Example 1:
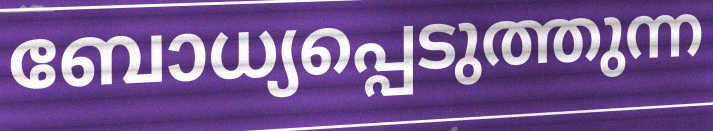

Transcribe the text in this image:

ബോധ്യപ്പെടുത്തുന്ന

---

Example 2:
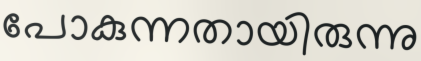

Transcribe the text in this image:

പോകുന്നതായിരുന്നു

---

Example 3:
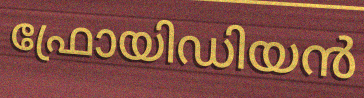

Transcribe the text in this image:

ഫ്രോയിഡിയൻ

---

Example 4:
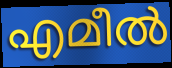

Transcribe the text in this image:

എമീൽ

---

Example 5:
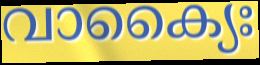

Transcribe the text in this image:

വാക്യൈഃ